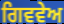
ਗਿਵਵੇਅ